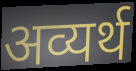
अव्यर्थ